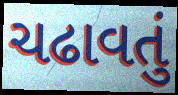
ચઢાવતું